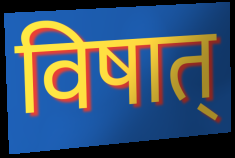
विषात्